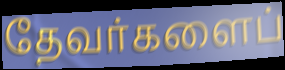
தேவர்களைப்